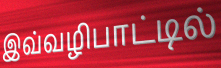
இவ்வழிபாட்டில்